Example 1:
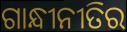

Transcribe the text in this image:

ଗାନ୍ଧୀନୀତିର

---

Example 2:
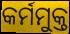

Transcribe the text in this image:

କର୍ମମୁକ୍ତ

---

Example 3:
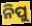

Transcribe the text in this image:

ନିପୁ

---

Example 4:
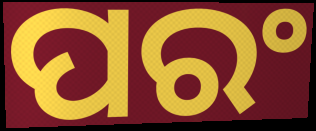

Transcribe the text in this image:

ପରଂ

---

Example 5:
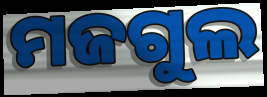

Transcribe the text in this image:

ମଜଗୁଲ